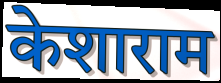
केशाराम